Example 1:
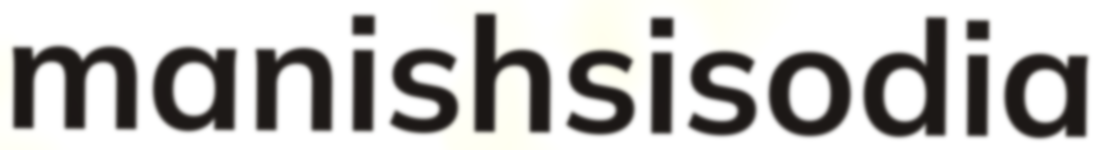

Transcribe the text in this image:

manishsisodia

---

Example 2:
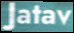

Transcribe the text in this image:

Jatav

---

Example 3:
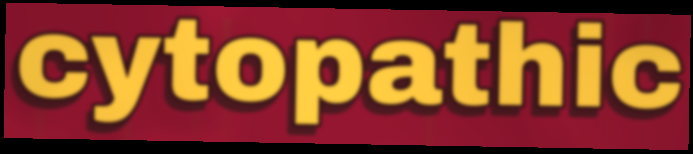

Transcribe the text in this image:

cytopathic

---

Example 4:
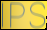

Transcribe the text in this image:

IPS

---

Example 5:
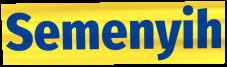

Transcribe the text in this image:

Semenyih